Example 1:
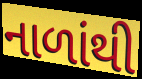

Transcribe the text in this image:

નાળાંથી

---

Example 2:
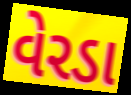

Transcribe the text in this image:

વેરડા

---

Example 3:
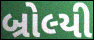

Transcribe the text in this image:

બ્રોલ્યી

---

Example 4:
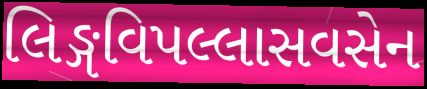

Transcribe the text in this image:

લિઙ્ગવિપલ્લાસવસેન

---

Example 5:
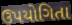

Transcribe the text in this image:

ઉપયોગિતા